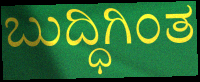
ಬುದ್ಧಿಗಿಂತ